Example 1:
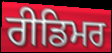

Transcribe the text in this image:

ਰੀਡਿਮਰ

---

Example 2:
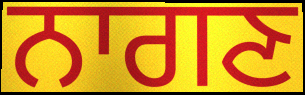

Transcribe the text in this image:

ਨਾਗਣ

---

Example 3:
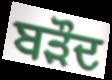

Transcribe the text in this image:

ਬੜੌਦ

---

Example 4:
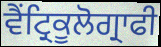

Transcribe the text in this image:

ਵੈਂਟ੍ਰਿਕੂਲੋਗ੍ਰਾਫੀ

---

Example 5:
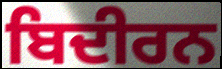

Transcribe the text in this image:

ਬਿਦੀਰਨ